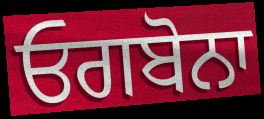
ਓਗਬੋਨਾ